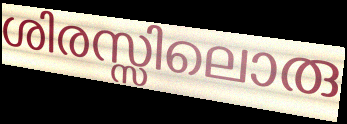
ശിരസ്സിലൊരു